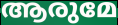
ആരുമേ